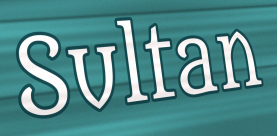
Sultan